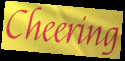
Cheering